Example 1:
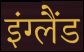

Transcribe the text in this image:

इंग्लैंड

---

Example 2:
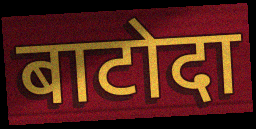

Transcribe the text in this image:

बाटोदा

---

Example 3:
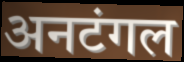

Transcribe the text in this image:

अनटंगल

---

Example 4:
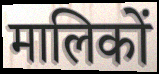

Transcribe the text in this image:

मालिकों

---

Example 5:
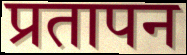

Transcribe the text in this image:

प्रतापन